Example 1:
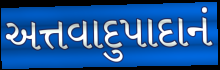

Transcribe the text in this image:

અત્તવાદુપાદાનં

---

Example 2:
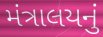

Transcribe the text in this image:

મંત્રાલયનું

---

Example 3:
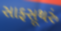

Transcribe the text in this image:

સાફસૂથરું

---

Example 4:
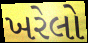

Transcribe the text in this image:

ખરેલો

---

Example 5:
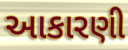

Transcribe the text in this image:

આકારણી